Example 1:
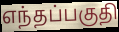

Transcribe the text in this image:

எந்தப்பகுதி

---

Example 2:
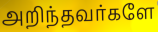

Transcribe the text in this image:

அறிந்தவர்களே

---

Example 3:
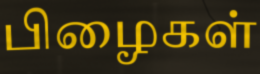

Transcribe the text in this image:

பிழைகள்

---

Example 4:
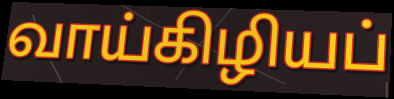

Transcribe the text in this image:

வாய்கிழியப்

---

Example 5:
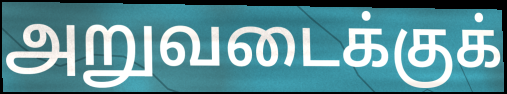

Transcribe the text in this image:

அறுவடைக்குக்